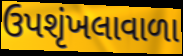
ઉપશૃંખલાવાળા